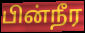
பின்நீர